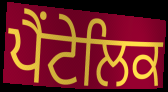
ਪੈਂਟੇਲਿਕ